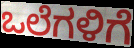
ಒಲೆಗಳಿಗೆ